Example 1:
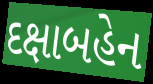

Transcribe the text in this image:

દક્ષાબહેન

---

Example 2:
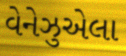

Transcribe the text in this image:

વેનેઝુએલા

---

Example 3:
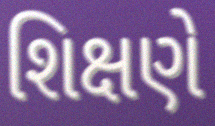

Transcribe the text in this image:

શિક્ષણે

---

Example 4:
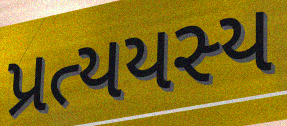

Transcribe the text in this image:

પ્રત્યયસ્ય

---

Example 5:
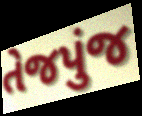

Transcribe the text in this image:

તેજપુંજ